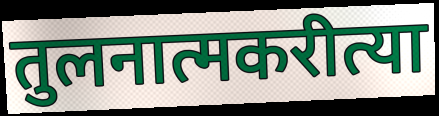
तुलनात्मकरीत्या